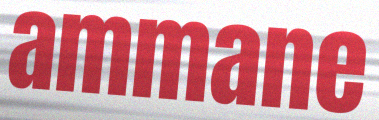
ammane